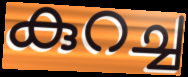
കുറച്ച